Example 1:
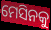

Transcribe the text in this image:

ମେସିନକୁ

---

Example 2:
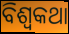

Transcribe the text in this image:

ବିଶ୍ୱକଥା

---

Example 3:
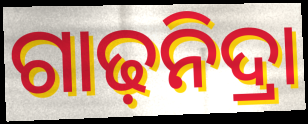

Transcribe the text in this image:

ଗାଢ଼ନିଦ୍ରା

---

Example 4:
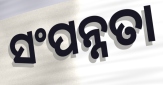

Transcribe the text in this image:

ସଂପନ୍ନତା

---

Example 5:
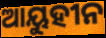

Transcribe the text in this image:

ଆୟୁହୀନ